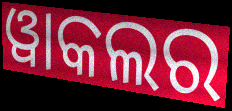
ୱାକଲର